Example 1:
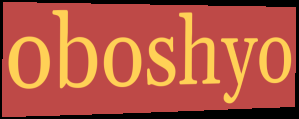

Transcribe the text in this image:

oboshyo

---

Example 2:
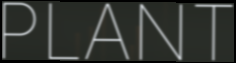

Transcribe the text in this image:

PLANT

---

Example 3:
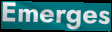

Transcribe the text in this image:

Emerges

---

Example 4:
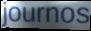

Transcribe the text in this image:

journos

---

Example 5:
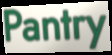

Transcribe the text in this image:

Pantry